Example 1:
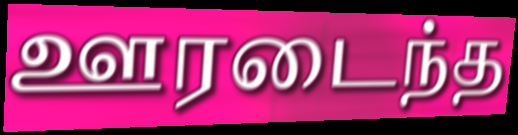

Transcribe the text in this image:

ஊரடைந்த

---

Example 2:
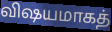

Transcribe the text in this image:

விஷயமாகத்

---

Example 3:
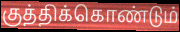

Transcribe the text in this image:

குத்திக்கொண்டும்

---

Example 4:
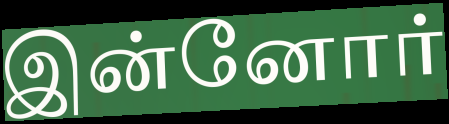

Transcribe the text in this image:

இன்னோர்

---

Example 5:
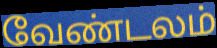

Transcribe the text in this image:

வேண்டலம்